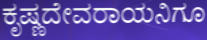
ಕೃಷ್ಣದೇವರಾಯನಿಗೂ